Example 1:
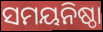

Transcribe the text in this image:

ସମୟନିଷ୍ଠା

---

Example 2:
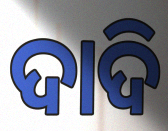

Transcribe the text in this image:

ଦାଦି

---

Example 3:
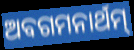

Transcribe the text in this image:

ଅବଗମନାର୍ଥମ୍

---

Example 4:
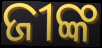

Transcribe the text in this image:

ଜୀଙ୍କ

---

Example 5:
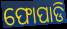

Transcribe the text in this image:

ଫୋପାଡି